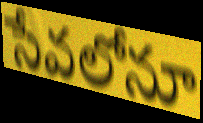
సేవలోనూ